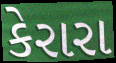
કેરારા